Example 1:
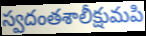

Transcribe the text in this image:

స్వదంతశాలీక్షుమపి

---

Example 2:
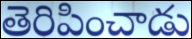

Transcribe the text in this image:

తెరిపించాడు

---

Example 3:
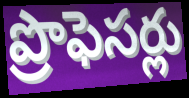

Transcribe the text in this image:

ప్రొఫెసర్లు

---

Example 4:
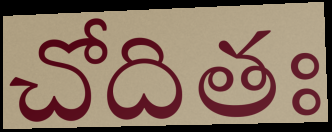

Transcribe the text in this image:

చోదితః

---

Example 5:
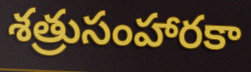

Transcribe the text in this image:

శత్రుసంహారకా